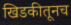
खिडकीतूनच